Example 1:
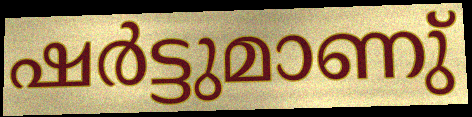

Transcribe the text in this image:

ഷർട്ടുമാണു്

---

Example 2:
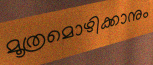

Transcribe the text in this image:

മൂത്രമൊഴിക്കാനും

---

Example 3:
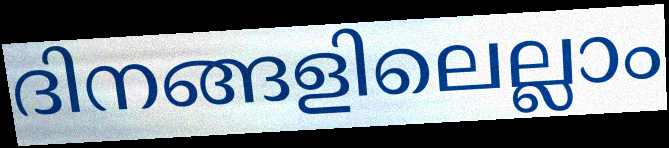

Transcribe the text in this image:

ദിനങ്ങളിലെല്ലാം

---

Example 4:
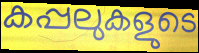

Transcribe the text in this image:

കപ്പലുകളുടെ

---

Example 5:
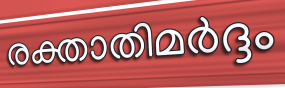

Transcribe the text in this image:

രക്താതിമർദ്ദം